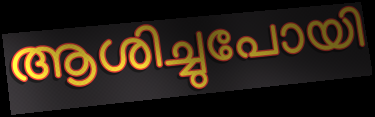
ആശിച്ചുപോയി